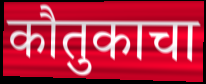
कौतुकाचा